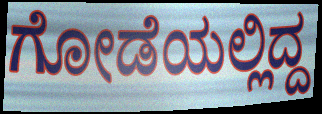
ಗೋಡೆಯಲ್ಲಿದ್ದ